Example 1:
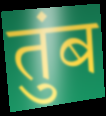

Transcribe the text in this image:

तुंब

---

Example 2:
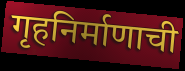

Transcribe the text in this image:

गृहनिर्माणाची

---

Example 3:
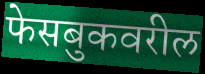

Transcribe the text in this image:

फेसबुकवरील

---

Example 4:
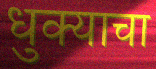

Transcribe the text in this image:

धुक्याचा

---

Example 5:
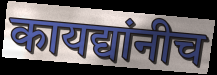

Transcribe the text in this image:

कायद्यांनीच